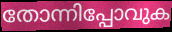
തോന്നിപ്പോവുക